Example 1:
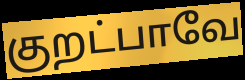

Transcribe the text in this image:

குறட்பாவே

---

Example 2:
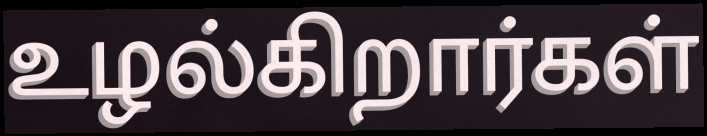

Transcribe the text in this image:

உழல்கிறார்கள்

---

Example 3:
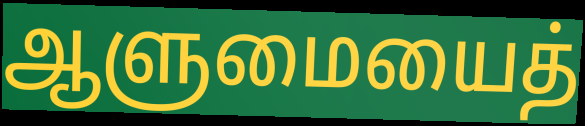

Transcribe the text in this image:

ஆளுமையைத்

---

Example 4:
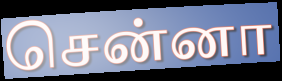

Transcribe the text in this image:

சென்னா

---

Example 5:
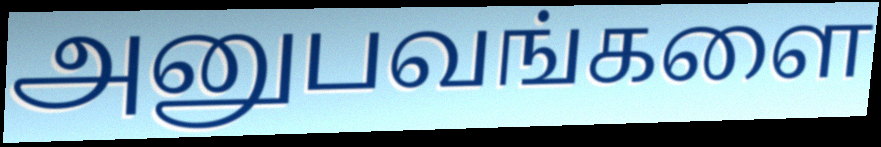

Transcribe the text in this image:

அனுபவங்களை